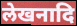
लेखनादि